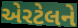
એરટેલને